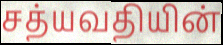
சத்யவதியின்